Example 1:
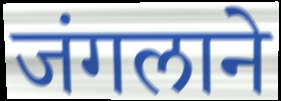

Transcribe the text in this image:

जंगलाने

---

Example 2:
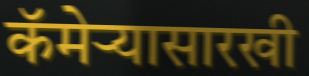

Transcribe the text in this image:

कॅमेऱ्यासारखी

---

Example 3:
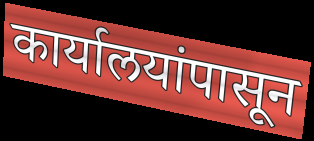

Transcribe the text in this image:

कार्यालयांपासून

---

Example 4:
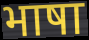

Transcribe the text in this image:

भाषा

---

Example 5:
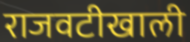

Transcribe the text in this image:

राजवटीखाली